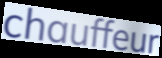
chauffeur